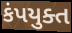
કંપયુક્ત